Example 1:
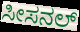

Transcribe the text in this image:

ಸೀಸನಲ್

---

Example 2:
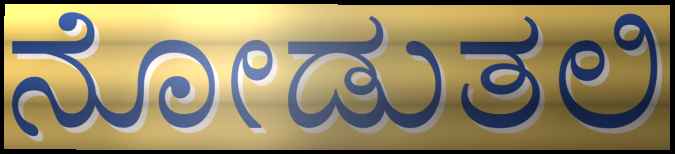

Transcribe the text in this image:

ನೋಡುತಲಿ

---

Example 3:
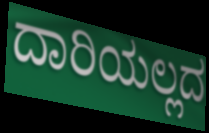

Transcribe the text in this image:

ದಾರಿಯಲ್ಲದ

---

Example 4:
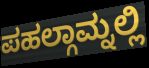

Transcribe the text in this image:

ಪಹಲ್ಗಾಮ್ನಲ್ಲಿ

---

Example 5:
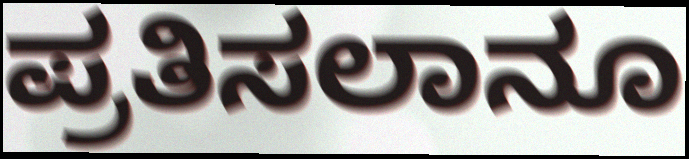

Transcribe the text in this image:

ಪ್ರತಿಸಲಾನೂ